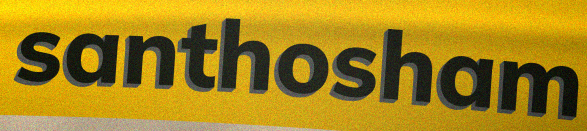
santhosham